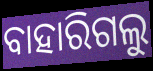
ବାହାରିଗଲୁ